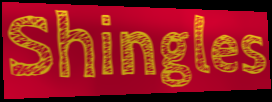
Shingles